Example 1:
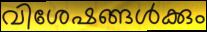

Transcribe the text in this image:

വിശേഷങ്ങൾക്കും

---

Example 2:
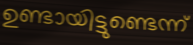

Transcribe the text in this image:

ഉണ്ടായിട്ടുണ്ടെന്ന്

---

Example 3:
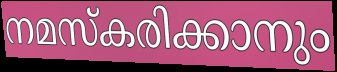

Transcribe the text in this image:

നമസ്കരിക്കാനും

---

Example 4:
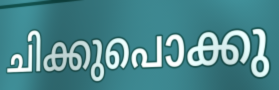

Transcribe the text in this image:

ചിക്കുപൊക്കു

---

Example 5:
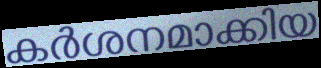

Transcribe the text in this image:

കർശനമാക്കിയ